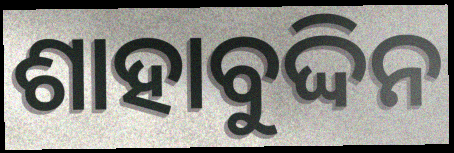
ଶାହାବୁଦ୍ଦିନ